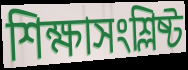
শিক্ষাসংশ্লিষ্ট